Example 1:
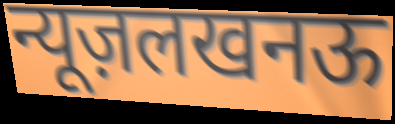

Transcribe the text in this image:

न्यूज़लखनऊ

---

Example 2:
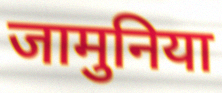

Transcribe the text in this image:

जामुनिया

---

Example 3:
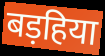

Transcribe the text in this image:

बड़हिया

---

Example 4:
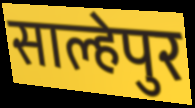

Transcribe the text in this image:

साल्हेपुर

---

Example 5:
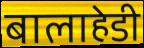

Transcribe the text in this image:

बालाहेडी